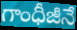
గాంధీజీనే